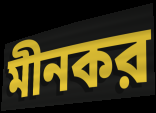
মীনকর